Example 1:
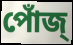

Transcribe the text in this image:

পোঁজ্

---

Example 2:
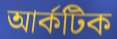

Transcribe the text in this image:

আর্কটিক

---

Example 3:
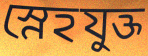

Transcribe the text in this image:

স্নেহযুক্ত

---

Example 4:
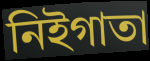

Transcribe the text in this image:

নিইগাতা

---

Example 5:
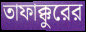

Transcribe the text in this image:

তাফাক্কুরের